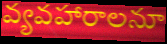
వ్యవహారాలనూ